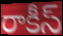
రాకీస్